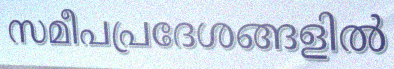
സമീപപ്രദേശങ്ങളിൽ